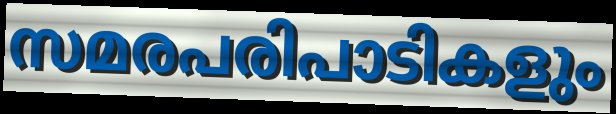
സമരപരിപാടികളും